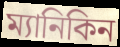
ম্যানিকিন